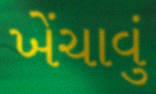
ખેંચાવું